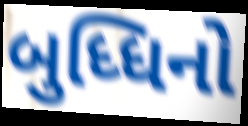
બુધ્ધિનો